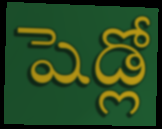
షెడ్లో